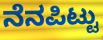
ನೆನಪಿಟ್ಟು